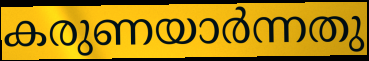
കരുണയാർന്നതു